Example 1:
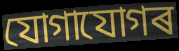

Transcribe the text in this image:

যোগাযোগৰ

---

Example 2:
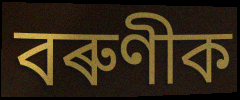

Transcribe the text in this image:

বৰুণীক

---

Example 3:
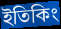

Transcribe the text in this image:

ইতিকিং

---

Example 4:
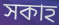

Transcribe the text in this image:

সকাহ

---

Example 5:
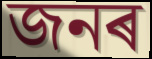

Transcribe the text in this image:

জনৰ